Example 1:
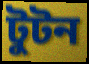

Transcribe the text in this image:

টুটন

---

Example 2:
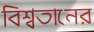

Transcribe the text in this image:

বিশ্বতানের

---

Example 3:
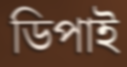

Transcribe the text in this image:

ডিপাই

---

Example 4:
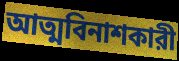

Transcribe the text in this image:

আত্মবিনাশকারী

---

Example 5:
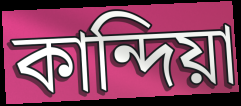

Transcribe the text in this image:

কান্দিয়া